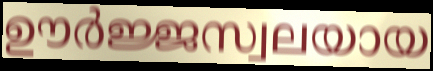
ഊർജ്ജസ്വലയായ